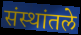
संस्थांतले